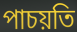
পাচয়তি